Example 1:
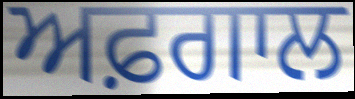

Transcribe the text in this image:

ਅਫ਼ਗਾਲ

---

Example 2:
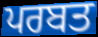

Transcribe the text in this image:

ਪਰਬਤ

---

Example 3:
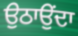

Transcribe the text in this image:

ਉਠਾਉਂਦਾ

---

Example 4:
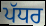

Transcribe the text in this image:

ਪੱਧਰ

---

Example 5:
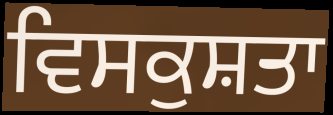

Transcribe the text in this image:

ਵਿਸਕੁਸ਼ਤਾ